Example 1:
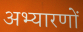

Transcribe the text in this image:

अभ्यारणों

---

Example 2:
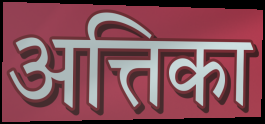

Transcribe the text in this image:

अत्तिका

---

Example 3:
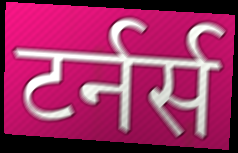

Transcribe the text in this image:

टर्नर्स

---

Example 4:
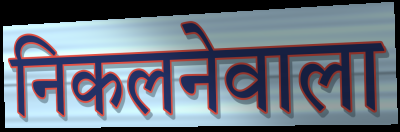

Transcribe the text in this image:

निकलनेवाला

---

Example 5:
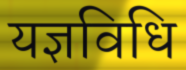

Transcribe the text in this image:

यज्ञविधि